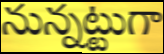
నున్నట్టుగా